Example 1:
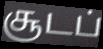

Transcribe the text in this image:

சூடப்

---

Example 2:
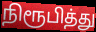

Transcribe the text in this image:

நிரூபித்து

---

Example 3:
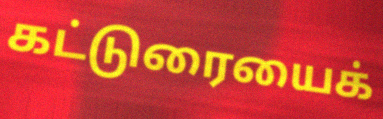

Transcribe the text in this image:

கட்டுரையைக்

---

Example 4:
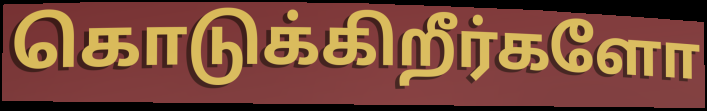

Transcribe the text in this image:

கொடுக்கிறீர்களோ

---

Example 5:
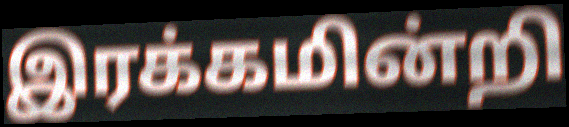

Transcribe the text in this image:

இரக்கமின்றி